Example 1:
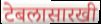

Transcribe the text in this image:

टेबलासारखी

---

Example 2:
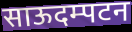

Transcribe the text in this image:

साऊदम्पटन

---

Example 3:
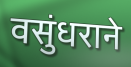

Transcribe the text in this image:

वसुंधराने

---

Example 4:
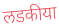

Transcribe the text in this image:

लडकीया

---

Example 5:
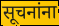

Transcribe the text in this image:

सूचनांना